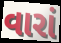
વારાં